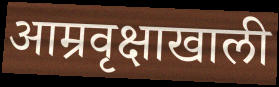
आम्रवृक्षाखाली